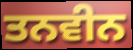
ਤਨਵੀਨ